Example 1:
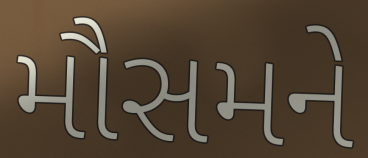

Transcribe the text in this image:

મૌસમને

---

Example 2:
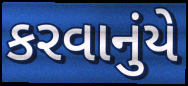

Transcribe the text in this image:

કરવાનુંયે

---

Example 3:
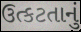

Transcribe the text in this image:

ઉત્કટતાનું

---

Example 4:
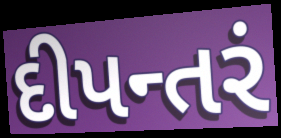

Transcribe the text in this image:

દીપન્તરં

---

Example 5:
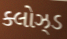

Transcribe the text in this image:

ક્લોઝ્ડ